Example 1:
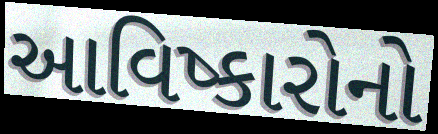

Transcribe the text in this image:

આવિષ્કારોનો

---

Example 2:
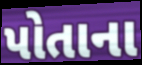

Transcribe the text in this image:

પોતાના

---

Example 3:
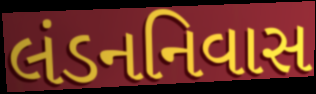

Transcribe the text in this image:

લંડનનિવાસ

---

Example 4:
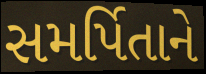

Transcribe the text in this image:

સમર્પિતાને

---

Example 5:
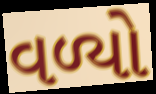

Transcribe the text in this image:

વળ્યો